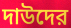
দাউদের